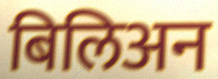
बिलिअन